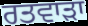
ਰਤਵਾੜਾ